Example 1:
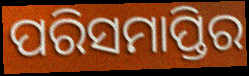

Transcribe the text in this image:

ପରିସମାପ୍ତିର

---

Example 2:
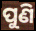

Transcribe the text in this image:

ପୁଣି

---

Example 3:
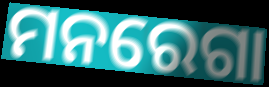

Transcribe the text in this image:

ମନରେଗା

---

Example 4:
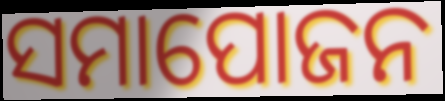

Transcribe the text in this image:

ସମାପୋଜନ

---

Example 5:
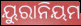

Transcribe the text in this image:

ୟୁରାନିୟମ